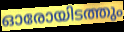
ഓരോയിടത്തും